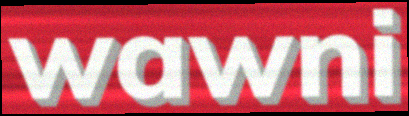
wawni